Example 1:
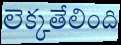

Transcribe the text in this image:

లెక్కతేలింది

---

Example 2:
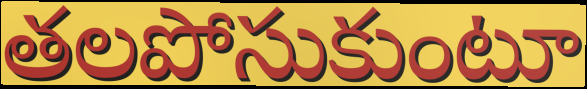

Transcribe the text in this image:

తలపోసుకుంటూ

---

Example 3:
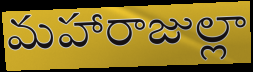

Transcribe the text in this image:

మహారాజుల్లా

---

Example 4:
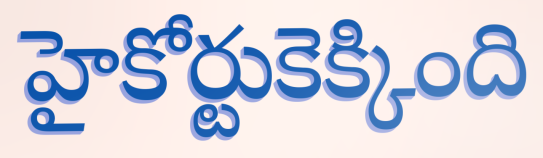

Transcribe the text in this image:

హైకోర్టుకెక్కింది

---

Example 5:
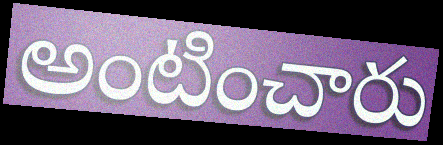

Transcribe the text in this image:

అంటించారు